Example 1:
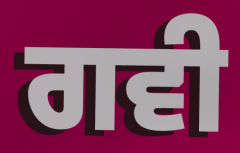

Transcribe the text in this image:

ਗਵੀ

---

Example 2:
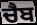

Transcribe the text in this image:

ਚੈਬ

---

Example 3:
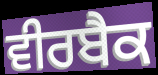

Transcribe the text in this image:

ਵੀਰਬੈਕ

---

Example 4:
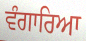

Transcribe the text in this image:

ਵੰਗਾਰਿਆ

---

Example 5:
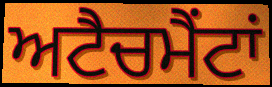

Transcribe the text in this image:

ਅਟੈਚਮੈਂਟਾਂ